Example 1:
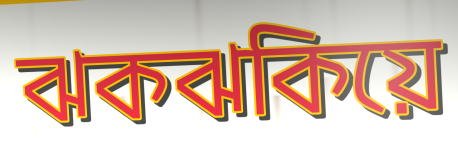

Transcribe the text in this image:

ঝকঝকিয়ে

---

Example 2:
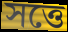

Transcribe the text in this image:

সত্তে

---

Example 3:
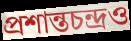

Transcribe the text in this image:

প্রশান্তচন্দ্রও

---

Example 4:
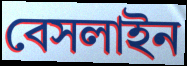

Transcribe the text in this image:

বেসলাইন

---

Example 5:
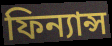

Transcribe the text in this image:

ফিন্যান্স